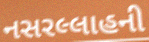
નસરલ્લાહની